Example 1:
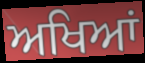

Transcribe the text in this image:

ਅਖਿਆਂ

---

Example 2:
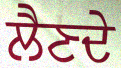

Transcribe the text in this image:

ਲੈਣਦੇ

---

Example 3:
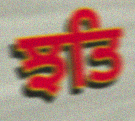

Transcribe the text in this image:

ਝਤਿ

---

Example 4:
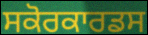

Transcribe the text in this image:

ਸਕੋਰਕਾਰਡਸ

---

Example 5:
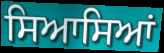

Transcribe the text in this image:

ਸਿਆਸਿਆਂ